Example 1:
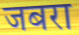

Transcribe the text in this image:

जबरा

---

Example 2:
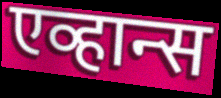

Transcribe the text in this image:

एव्हान्स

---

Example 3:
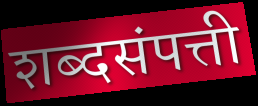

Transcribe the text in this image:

शब्दसंपत्ती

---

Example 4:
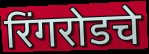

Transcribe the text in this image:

रिंगरोडचे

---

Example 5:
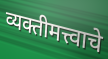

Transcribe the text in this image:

व्यक्तीमत्त्वाचे